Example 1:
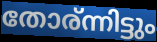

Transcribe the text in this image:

തോര്ന്നിട്ടും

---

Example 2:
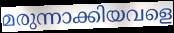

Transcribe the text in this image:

മരുന്നാക്കിയവളെ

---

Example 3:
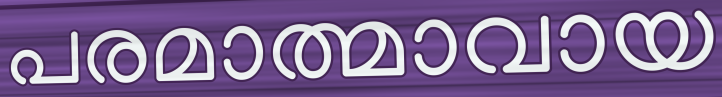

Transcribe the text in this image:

പരമാത്മാവായ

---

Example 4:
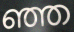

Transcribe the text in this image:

ഞ്ഞ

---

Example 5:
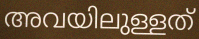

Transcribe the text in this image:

അവയിലുള്ളത്